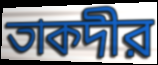
তাকদীর